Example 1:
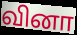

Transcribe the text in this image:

வினா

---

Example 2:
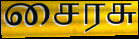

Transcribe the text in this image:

சைரசு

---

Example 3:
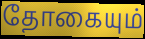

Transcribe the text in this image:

தோகையும்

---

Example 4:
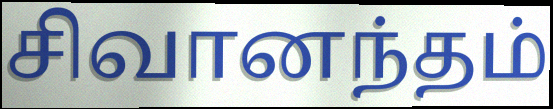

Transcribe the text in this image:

சிவானந்தம்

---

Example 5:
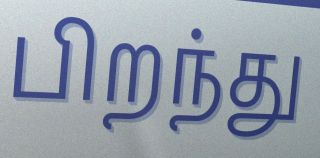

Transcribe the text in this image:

பிறந்து